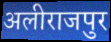
अलीराजपुर